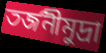
তর্জনীমুদ্রা